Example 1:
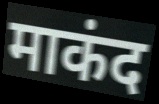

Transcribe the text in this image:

माकंद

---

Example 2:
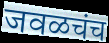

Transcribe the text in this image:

जवळचंच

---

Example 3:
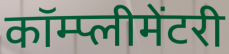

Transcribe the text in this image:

कॉम्प्लीमेंटरी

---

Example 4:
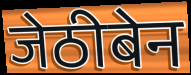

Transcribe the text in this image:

जेठीबेन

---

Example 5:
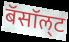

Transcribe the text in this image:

बॅसॉल्ट